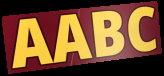
AABC